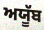
ਅਯੂੱਬ